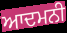
ਆਦਮਨੀ